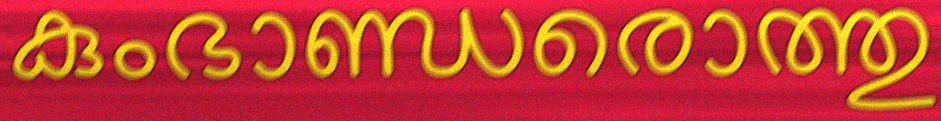
കുംഭാണ്ഡരൊത്തു